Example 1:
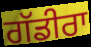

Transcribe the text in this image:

ਗੱਡੀਰਾ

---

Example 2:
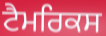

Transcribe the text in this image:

ਟੈਮਰਿਕਸ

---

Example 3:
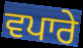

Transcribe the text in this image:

ਵਪਾਰੇ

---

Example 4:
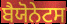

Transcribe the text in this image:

ਬੈਯੋਨੇਟਸ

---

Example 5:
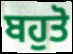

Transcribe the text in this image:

ਬਹੁਤੋ